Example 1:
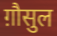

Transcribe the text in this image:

ग़ौसुल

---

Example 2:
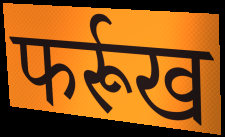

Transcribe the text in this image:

फर्रूख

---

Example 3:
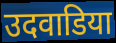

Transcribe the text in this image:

उदवाडिया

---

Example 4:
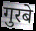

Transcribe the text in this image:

गुरबे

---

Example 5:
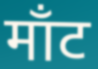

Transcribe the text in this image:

माँट